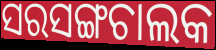
ସରସଙ୍ଗଚାଲକ